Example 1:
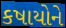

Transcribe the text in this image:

કષાયોને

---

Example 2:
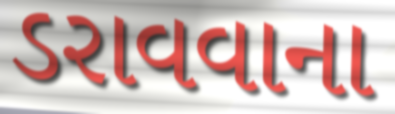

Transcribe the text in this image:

ડરાવવાના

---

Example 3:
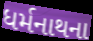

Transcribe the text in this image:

ધર્મનાથના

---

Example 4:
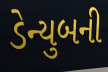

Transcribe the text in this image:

ડેન્યુબની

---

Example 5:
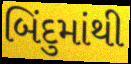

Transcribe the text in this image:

બિંદુમાંથી